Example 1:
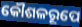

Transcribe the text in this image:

କୌଶଳରୂପେ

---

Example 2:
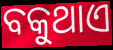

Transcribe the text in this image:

ବକୁଥାଏ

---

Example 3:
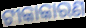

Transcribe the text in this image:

ଟୀକାକାରଣ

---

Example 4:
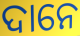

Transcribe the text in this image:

ଦାନେ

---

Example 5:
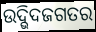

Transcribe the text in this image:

ଉଦ୍ଭିଦଜଗତର